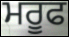
ਮਰੂਫ